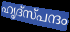
ഹൃദ്സ്പന്ദം